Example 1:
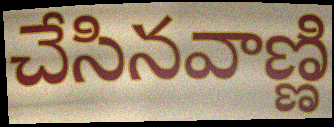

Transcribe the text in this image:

చేసినవాణ్ణి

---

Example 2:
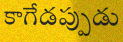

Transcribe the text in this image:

కాగేడప్పుడు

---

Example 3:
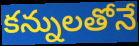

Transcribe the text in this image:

కన్నులతోనే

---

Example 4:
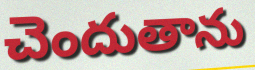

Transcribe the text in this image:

చెందుతాను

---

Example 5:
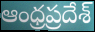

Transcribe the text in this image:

ఆంధ్రప్రదేశ్